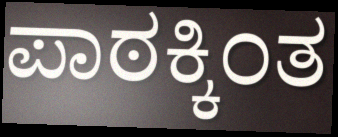
ಪಾಠಕ್ಕಿಂತ